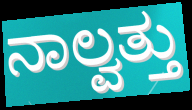
ನಾಲ್ವತ್ತು